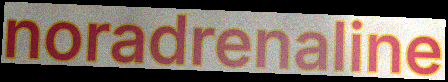
noradrenaline